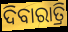
ଦିବାରାତ୍ରି